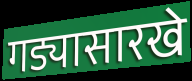
गड्यासारखे